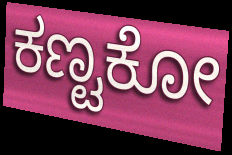
ಕಣ್ಟಕೋ